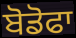
ਬੋਡੋਫਾ